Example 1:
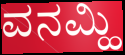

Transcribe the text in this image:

ವನಮ್ಹಿ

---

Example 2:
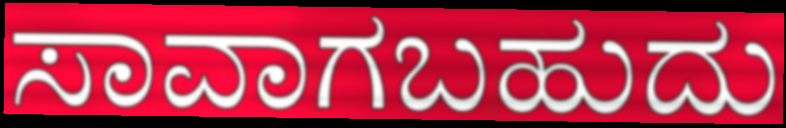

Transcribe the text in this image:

ಸಾವಾಗಬಹುದು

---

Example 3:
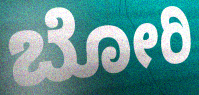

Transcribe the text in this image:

ಬೋರಿ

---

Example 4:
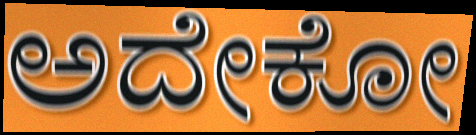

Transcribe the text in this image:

ಅದೇಕೋ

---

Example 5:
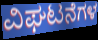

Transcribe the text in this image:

ವಿಘಟನೆಗಳ